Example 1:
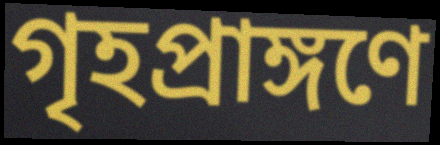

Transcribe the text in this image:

গৃহপ্রাঙ্গণে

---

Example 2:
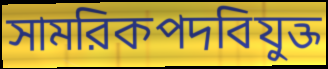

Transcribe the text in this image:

সামরিকপদবিযুক্ত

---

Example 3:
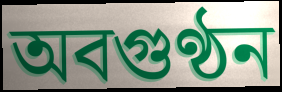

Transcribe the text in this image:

অবগুণ্ঠন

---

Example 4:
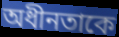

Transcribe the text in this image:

অধীনতাকে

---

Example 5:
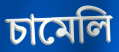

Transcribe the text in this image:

চামেলি